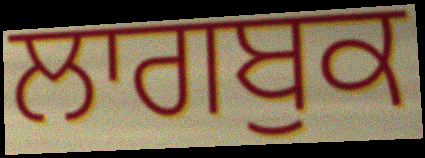
ਲਾਗਬੁਕ